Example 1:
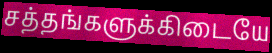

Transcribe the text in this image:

சத்தங்களுக்கிடையே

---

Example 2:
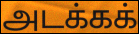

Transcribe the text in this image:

அடக்கக்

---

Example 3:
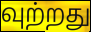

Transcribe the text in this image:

வுற்றது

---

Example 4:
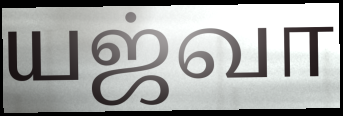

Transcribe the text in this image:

யஜ்வா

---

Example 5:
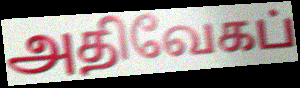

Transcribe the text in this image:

அதிவேகப்